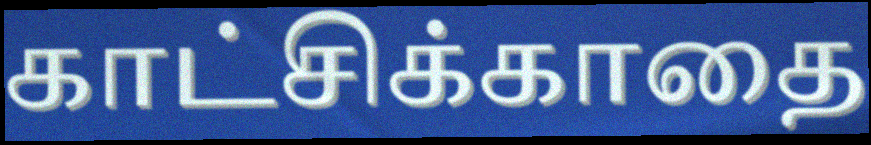
காட்சிக்காதை